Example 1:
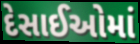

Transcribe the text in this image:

દેસાઈઓમાં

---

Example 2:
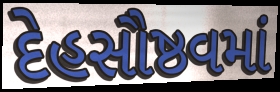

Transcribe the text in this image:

દેહસૌષ્ઠવમાં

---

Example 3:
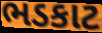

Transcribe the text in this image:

ભડકાટ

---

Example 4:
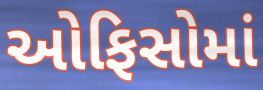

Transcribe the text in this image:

ઓફિસોમાં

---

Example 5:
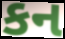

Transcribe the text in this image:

કન